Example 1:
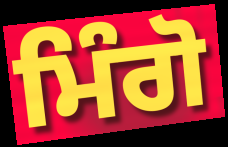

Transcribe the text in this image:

ਮਿੰਗੋ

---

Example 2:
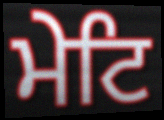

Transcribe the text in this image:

ਮੇਟਿ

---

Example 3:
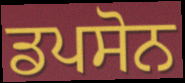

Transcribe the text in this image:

ਡਪਸੋਨ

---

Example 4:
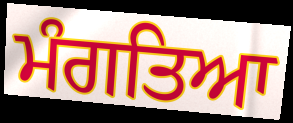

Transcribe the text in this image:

ਮੰਗਤਿਆ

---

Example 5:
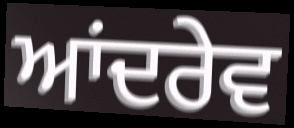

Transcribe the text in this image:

ਆਂਦਰੇਵ